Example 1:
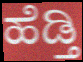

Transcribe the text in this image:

ಹೆಡ್ತಿ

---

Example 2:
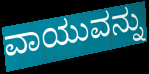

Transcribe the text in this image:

ವಾಯುವನ್ನು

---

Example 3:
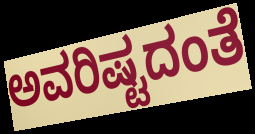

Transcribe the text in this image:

ಅವರಿಷ್ಟದಂತೆ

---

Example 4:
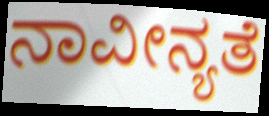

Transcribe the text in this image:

ನಾವೀನ್ಯತೆ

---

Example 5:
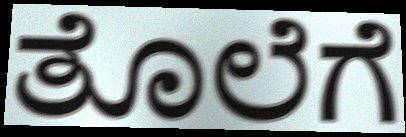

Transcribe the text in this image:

ತೊಲೆಗೆ